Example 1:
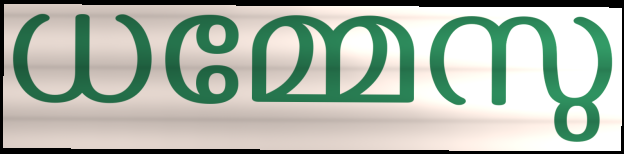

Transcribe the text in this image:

ധമ്മേസു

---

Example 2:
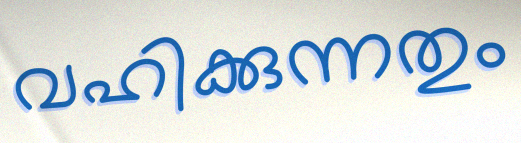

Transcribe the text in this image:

വഹിക്കുന്നതും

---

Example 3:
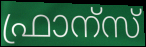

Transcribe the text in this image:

ഫ്രാന്സ്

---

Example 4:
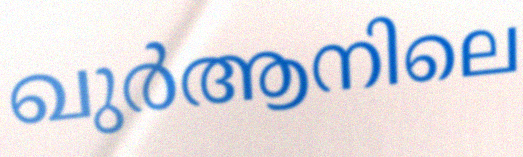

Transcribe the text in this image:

ഖുർആനിലെ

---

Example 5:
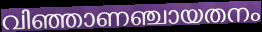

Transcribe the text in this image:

വിഞ്ഞാണഞ്ചായതനം